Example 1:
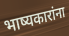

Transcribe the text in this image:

भाष्यकारांना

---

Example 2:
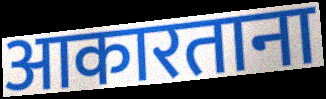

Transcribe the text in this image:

आकारताना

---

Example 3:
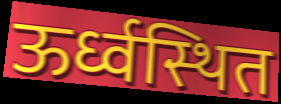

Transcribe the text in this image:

ऊर्ध्वस्थित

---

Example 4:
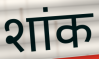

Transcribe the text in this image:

शांक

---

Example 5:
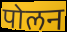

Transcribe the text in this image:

पोलन